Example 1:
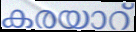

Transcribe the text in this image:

കരയാറ്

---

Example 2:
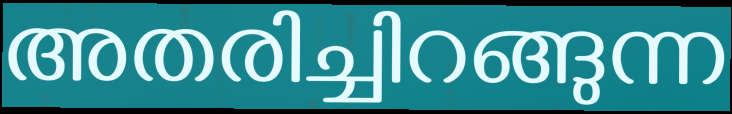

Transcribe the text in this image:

അതരിച്ചിറങ്ങുന്ന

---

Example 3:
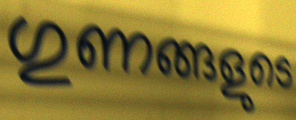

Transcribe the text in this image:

ഗുണങ്ങളുടെ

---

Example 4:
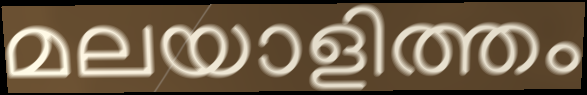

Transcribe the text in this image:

മലയാളിത്തം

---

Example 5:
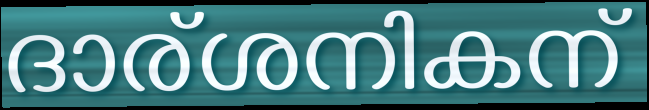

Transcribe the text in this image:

ദാര്ശനികന്